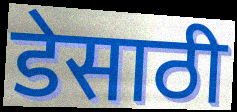
डेसाठी